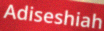
Adiseshiah